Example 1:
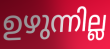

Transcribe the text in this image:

ഉഴുന്നില്ല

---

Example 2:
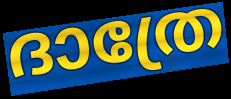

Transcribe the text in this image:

ദാത്രേ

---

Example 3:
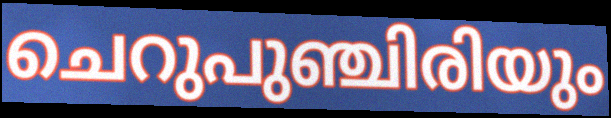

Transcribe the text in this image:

ചെറുപുഞ്ചിരിയും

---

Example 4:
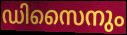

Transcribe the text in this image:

ഡിസൈനും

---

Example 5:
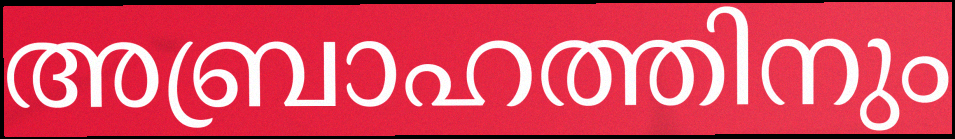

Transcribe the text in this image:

അബ്രാഹത്തിനും